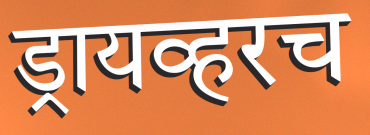
ड्रायव्हरच